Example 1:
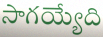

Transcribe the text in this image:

సాగయ్యేది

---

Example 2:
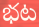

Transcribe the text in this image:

భట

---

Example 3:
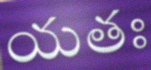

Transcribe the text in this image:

యతః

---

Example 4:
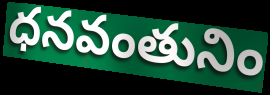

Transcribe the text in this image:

ధనవంతునిం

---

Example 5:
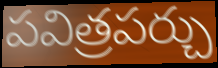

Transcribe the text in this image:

పవిత్రపర్చు